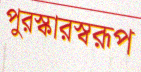
পুরস্কারস্বরূপ